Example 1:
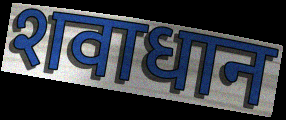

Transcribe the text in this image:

शवाधान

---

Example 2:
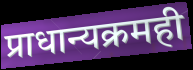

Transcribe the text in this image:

प्राधान्यक्रमही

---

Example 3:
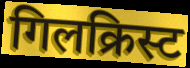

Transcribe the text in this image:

गिलक्रिस्‍ट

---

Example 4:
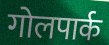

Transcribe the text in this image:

गोलपार्क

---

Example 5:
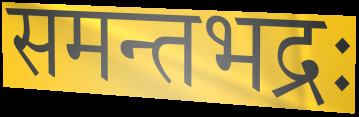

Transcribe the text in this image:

समन्तभद्रः